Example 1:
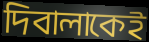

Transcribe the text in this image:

দিবালাকেই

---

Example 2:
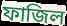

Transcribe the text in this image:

ফাজিল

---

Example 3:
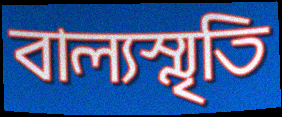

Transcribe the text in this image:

বাল্যস্মৃতি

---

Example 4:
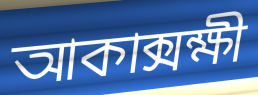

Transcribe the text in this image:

আকাক্সক্ষী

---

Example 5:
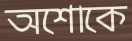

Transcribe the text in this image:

অশোকে